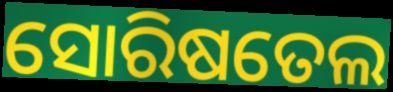
ସୋରିଷତେଲ